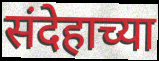
संदेहाच्या